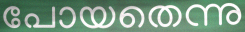
പോയതെന്നു